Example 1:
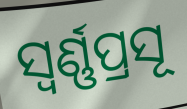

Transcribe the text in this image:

ସ୍ବର୍ଣ୍ଣପ୍ରସୂ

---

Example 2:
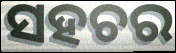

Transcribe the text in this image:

ସହଚର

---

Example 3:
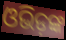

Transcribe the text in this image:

ଓଭିଡ଼ଙ୍କ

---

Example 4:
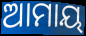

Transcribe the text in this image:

ଆମାୟ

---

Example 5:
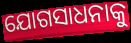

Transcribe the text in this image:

ଯୋଗସାଧନାକୁ